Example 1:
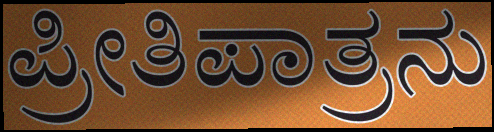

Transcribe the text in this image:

ಪ್ರೀತಿಪಾತ್ರನು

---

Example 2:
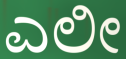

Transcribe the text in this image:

ಎಲೀ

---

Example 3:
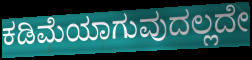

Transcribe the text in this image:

ಕಡಿಮೆಯಾಗುವುದಲ್ಲದೇ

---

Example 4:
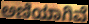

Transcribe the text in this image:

ಅಣಿಯಾಗಿವೆ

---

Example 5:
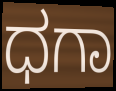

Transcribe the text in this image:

ಧಗಾ